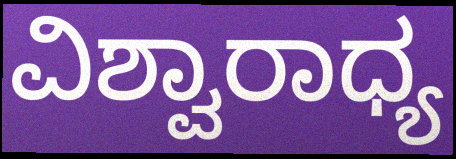
ವಿಶ್ವಾರಾಧ್ಯ